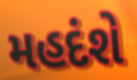
મહદંશે